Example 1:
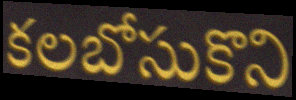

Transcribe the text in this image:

కలబోసుకొని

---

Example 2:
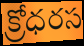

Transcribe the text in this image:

క్రోధరస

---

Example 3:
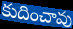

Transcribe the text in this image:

కుదించావు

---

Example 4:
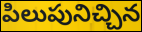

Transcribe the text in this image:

పిలుపునిచ్చిన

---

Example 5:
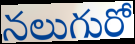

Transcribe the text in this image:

నలుగురో